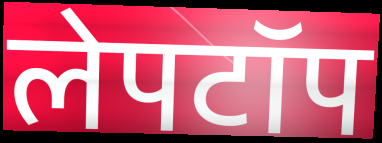
लेपटॉप